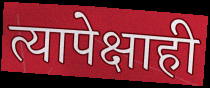
त्यापेक्षाही